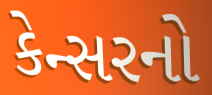
કેન્સરનો